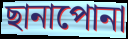
ছানাপোনা